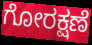
ಗೋರಕ್ಷಣೆ